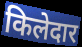
किलेदार